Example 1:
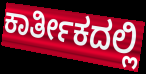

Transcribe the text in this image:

ಕಾರ್ತೀಕದಲ್ಲಿ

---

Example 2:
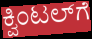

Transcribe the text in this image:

ಕ್ವಿಂಟಲ್‌ಗೆ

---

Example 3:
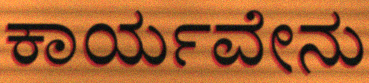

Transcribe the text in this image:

ಕಾರ್ಯವೇನು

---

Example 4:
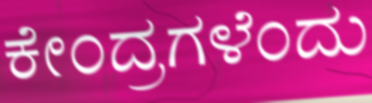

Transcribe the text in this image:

ಕೇಂದ್ರಗಳೆಂದು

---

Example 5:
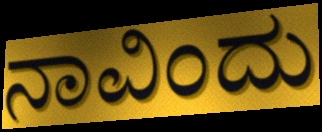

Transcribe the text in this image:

ನಾವಿಂದು